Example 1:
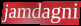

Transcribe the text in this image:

jamdagni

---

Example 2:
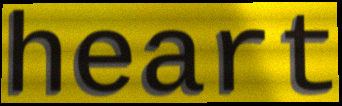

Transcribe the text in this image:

heart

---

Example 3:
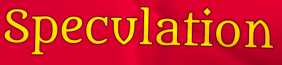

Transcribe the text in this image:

Speculation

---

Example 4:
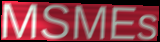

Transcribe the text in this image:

MSMEs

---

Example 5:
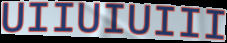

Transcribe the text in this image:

UIIUIUIII